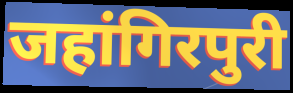
जहांगिरपुरी